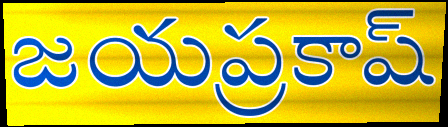
జయప్రకాష్